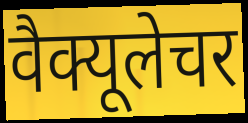
वैक्यूलेचर